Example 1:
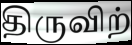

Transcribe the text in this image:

திருவிற்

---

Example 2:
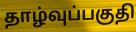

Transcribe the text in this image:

தாழ்வுப்பகுதி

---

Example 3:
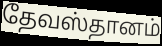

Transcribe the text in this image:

தேவஸ்தானம்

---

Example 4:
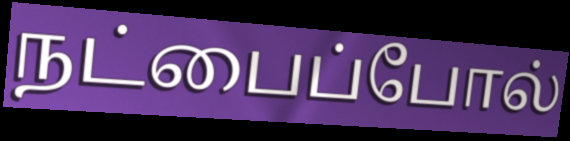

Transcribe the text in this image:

நட்பைப்போல்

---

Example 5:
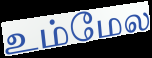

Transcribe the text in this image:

உம்மேல